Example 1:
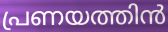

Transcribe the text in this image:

പ്രണയത്തിൻ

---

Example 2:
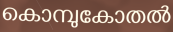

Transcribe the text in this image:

കൊമ്പുകോതൽ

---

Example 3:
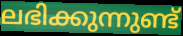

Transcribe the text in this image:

ലഭിക്കുന്നുണ്ട്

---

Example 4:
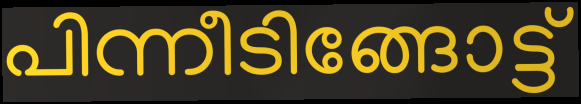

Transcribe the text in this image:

പിന്നീടിങ്ങോട്ട്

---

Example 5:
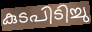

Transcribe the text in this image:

കുടപിടിച്ചു